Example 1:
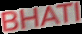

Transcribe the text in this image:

BHATI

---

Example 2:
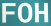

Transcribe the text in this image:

FOH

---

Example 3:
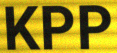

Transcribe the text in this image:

KPP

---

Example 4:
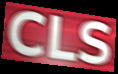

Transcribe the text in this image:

CLS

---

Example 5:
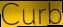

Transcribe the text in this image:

Curb